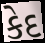
કેદ